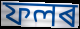
ফলৰ